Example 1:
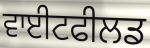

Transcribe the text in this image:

ਵਾਈਟਫੀਲਡ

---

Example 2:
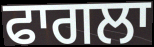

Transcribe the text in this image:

ਫਾਗਲਾ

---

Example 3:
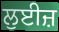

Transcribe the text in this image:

ਲੁਈਜ਼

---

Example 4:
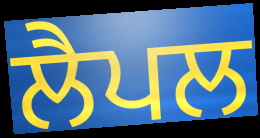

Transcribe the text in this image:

ਲੈਪਲ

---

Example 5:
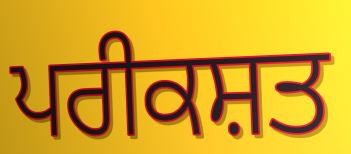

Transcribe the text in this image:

ਪਰੀਕਸ਼ਤ